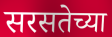
सरसतेच्या